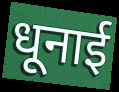
धूनाई